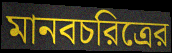
মানবচরিত্রের